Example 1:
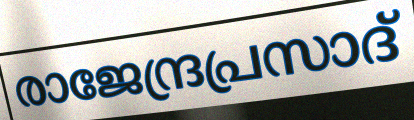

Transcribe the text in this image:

രാജേന്ദ്രപ്രസാദ്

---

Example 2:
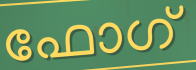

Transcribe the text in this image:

ഫോഗ്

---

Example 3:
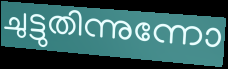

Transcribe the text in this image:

ചുട്ടുതിന്നുന്നോ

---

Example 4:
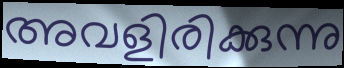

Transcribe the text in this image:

അവളിരിക്കുന്നു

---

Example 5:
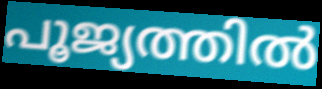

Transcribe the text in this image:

പൂജ്യത്തിൽ